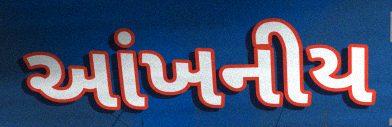
આંખનીય